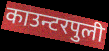
काउन्टरपुली